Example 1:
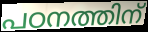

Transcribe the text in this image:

പഠനത്തിന്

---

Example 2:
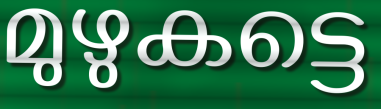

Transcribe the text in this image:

മുഴുകട്ടെ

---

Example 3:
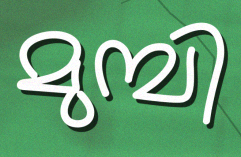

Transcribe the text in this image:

മുമ്പി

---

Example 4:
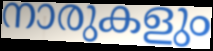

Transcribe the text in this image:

നാരുകളും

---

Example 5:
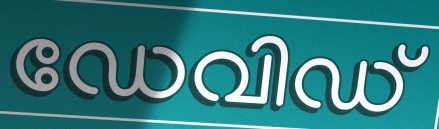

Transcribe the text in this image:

ഡേവിഡ്